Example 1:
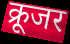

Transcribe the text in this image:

क्रूजर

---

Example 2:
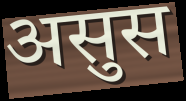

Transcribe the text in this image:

असुस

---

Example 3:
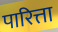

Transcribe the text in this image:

पारित्ता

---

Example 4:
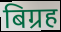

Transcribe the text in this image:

बिग्रह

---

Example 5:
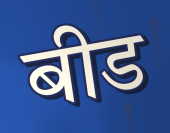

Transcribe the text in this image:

बीड